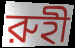
রুহী